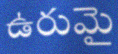
ఉరుమై